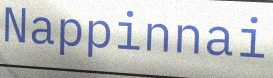
Nappinnai